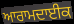
ਆਰਾਮਦਾਈਕ